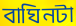
বাঘিনটা